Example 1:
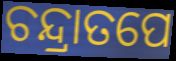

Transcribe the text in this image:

ଚନ୍ଦ୍ରାତପେ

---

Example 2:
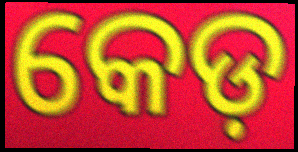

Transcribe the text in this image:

କେଡ଼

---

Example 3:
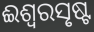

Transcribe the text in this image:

ଈଶ୍ୱରସୃଷ୍ଟ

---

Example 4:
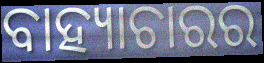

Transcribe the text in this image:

ବାହ୍ୟାଚାରର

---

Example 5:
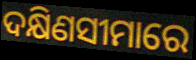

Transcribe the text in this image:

ଦକ୍ଷିଣସୀମାରେ